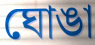
ঘোঙা